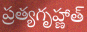
ప్రత్యగృహ్ణాత్